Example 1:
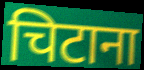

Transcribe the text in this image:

चिटाना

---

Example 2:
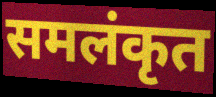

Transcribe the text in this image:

समलंकृत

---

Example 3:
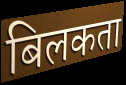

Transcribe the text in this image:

बिलकता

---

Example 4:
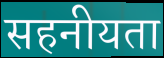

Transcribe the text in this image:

सहनीयता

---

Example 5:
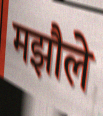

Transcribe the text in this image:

मझौले